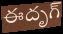
ఈదృగ్